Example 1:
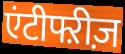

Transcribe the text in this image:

एंटीफ्ऱीज़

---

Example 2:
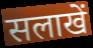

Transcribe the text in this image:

सलाखें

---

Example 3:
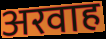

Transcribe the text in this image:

अरवाह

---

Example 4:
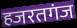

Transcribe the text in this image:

हजरतगंज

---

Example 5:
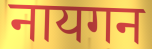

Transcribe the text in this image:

नायगन